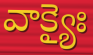
వాక్యైః